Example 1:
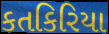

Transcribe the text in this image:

કતકિરિયા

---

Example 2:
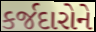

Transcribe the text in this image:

કર્જદારોને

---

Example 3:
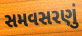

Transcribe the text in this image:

સમવસરણું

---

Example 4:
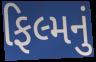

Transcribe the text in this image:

ફિલ્મનું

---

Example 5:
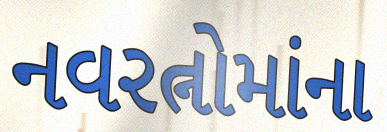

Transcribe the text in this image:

નવરત્નોમાંના